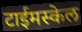
टाईमस्केल